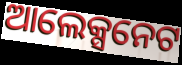
ଆଲେକ୍ସନେଟ